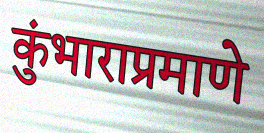
कुंभाराप्रमाणे